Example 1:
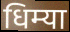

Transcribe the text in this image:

धिम्या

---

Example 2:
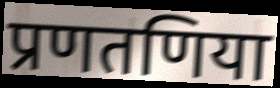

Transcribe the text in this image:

प्रणतणिया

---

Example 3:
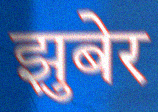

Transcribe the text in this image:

झुबेर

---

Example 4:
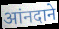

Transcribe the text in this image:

आंनदाने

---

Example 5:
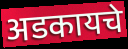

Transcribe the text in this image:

अडकायचे